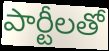
పార్టీలతో